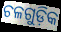
ଚଳଗୁଡ଼ିକ